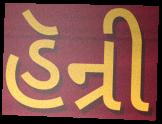
હૅન્રી